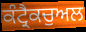
ਕੰਟ੍ਰੈਕਚੁਅਲ